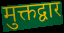
मुक्तद्वार